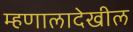
म्हणालादेखील